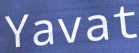
Yavat